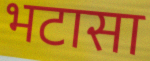
भटासा